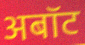
अबॉट